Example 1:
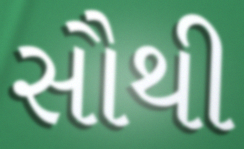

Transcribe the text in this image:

સૌથી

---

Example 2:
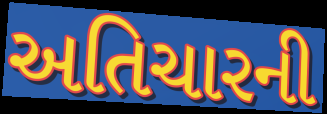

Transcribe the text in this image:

અતિચારની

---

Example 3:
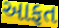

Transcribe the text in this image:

આફત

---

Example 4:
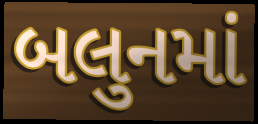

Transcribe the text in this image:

બલુનમાં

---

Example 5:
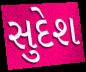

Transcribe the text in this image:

સુદેશ